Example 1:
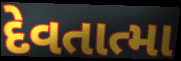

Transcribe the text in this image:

દેવતાત્મા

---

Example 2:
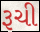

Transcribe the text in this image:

રૂચી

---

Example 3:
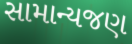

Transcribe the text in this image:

સામાન્યજણ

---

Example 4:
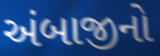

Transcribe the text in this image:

અંબાજીનો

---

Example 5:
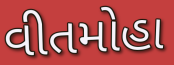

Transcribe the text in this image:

વીતમોહા